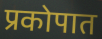
प्रकोपात